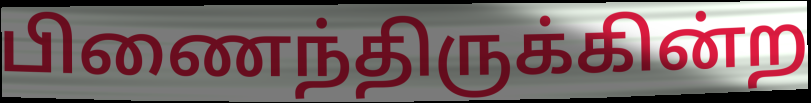
பிணைந்திருக்கின்ற